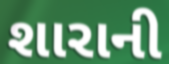
શારાની